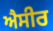
ਐਸੀਰ